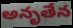
అనృతేన